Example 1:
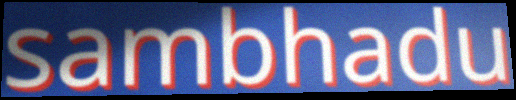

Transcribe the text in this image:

sambhadu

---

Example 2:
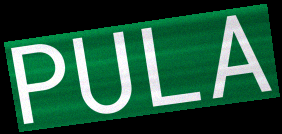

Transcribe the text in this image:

PULA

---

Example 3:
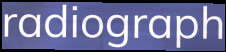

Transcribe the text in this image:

radiograph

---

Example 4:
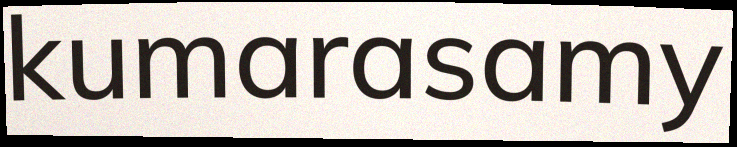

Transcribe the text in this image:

kumarasamy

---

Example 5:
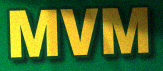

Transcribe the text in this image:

MVM